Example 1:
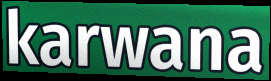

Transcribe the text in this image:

karwana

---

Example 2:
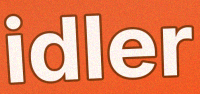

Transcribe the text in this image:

idler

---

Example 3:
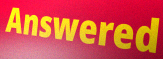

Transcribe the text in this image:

Answered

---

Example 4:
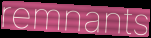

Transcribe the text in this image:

remnants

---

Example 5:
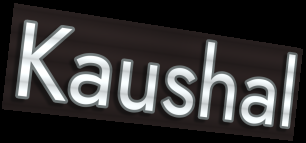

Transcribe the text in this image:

Kaushal